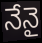
నేనై